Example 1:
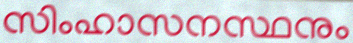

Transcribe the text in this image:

സിംഹാസനസ്ഥനും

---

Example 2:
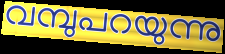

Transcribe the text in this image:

വമ്പുപറയുന്നു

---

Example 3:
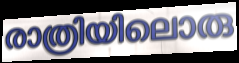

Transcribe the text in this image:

രാത്രിയിലൊരു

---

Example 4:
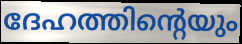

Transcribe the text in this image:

ദേഹത്തിന്റെയും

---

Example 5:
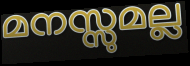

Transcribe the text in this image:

മനസ്സുമല്ല